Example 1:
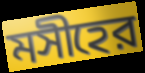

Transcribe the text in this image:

মসীহের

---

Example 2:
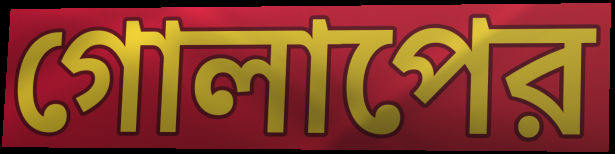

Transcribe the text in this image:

গোলাপের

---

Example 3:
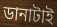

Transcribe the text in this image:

ডানাটাই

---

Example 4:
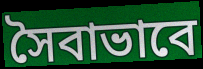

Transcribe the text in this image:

সৈবাভাবে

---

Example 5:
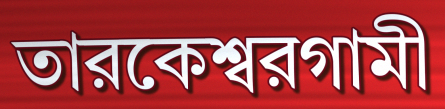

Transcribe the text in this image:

তারকেশ্বরগামী